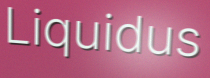
Liquidus